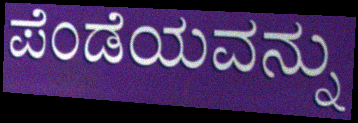
ಪೆಂಡೆಯವನ್ನು